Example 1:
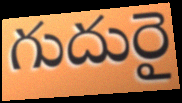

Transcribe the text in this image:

గుదురై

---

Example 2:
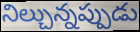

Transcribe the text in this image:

నిల్చున్నప్పుడు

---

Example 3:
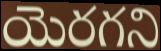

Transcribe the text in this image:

యెరగని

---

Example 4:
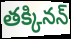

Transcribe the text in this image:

తక్కినన్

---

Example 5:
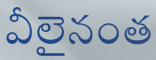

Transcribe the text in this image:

వీలైనంత